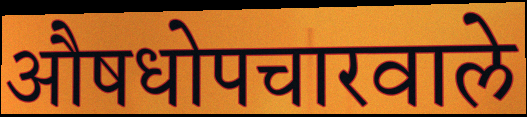
औषधोपचारवाले